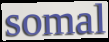
somal